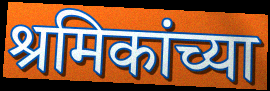
श्रमिकांच्या